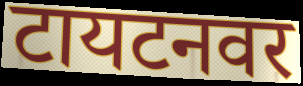
टायटनवर